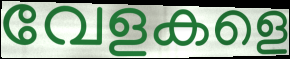
വേളകളെ